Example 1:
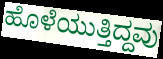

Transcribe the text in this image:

ಹೊಳೆಯುತ್ತಿದ್ದವು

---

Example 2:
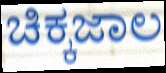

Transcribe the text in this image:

ಚಿಕ್ಕಜಾಲ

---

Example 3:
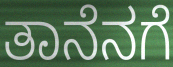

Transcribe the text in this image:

ತಾನೆನಗೆ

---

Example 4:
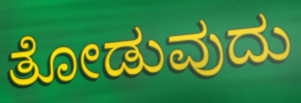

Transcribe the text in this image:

ತೋಡುವುದು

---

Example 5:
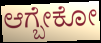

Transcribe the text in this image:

ಆಗ್ಬೇಕೋ